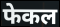
फेकल